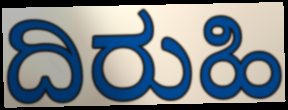
ದಿರುಹಿ